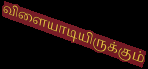
விளையாடியிருக்கும்